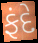
ફંદે